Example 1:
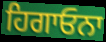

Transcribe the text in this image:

ਹਿਗਾਓਨਾ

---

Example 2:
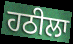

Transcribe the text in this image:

ਹਠੀਲਾ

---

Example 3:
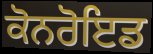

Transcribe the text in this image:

ਕੋਨਰੋਇਡ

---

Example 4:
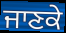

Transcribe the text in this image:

ਜਾਣਕੇ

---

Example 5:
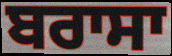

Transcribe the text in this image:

ਬਰਾਸਾ